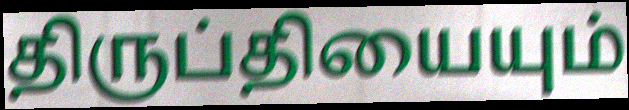
திருப்தியையும்